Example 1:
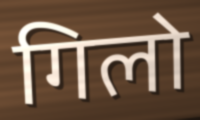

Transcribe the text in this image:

गिलो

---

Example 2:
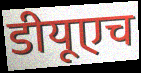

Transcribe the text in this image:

डीयूएच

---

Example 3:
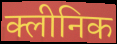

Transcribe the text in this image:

क्‍लीनिक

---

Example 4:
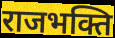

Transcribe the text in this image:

राजभक्ति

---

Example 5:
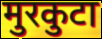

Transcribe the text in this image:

मुरकुटा